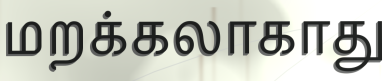
மறக்கலாகாது